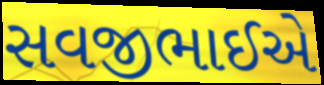
સવજીભાઈએ